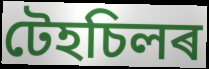
টেহচিলৰ